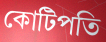
কোটিপতি